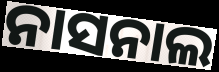
ନାସନାଲ